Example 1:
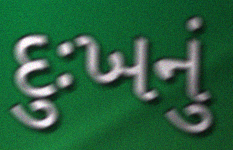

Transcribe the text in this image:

દુઃખનું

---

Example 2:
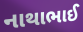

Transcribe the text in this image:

નાથાભાઈ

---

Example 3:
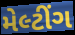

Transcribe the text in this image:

મેલ્ટીંગ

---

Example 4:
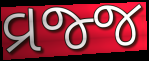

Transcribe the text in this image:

વ્રજ્જ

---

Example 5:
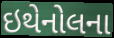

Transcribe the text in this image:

ઇથેનોલના